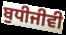
ਬੁਧੀਜੀਵੀ